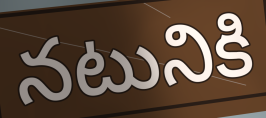
నటునికి